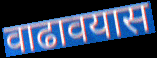
वाढावयास